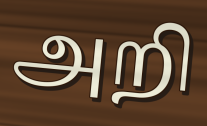
அறி